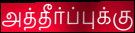
அத்தீர்ப்புக்கு